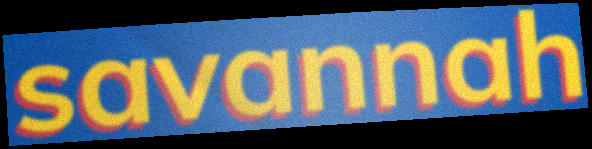
savannah